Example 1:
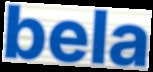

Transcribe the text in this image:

bela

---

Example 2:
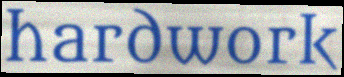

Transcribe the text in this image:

hardwork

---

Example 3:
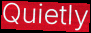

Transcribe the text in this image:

Quietly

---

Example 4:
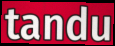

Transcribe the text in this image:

tandu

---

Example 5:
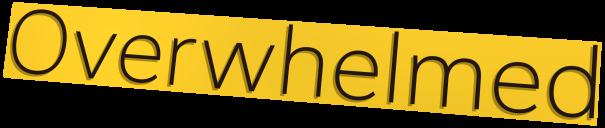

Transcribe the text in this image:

Overwhelmed